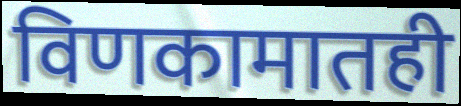
विणकामातही